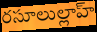
రసూలుల్లాహ్